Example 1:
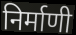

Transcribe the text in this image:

निर्माणी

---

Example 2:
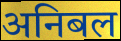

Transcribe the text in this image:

अनिबल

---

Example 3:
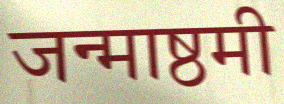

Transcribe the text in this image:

जन्माष्ठमी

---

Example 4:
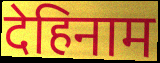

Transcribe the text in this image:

देहिनाम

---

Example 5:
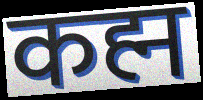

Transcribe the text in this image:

कह्म